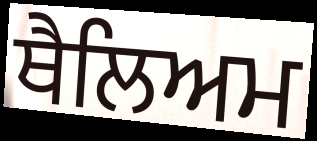
ਥੈਲਿਅਮ